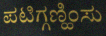
ಪಟಿಗ್ಗಣ್ಹಿಂಸು